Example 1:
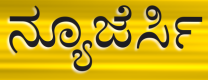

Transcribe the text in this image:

ನ್ಯೂಜೆರ್ಸಿ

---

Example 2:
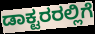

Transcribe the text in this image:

ಡಾಕ್ಟರರಲ್ಲಿಗೆ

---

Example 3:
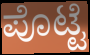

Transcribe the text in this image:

ಪೊಟ್ಟೆ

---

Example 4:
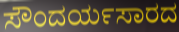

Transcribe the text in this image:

ಸೌಂದರ್ಯಸಾರದ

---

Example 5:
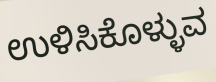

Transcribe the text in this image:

ಉಳಿಸಿಕೊಳ್ಳುವ